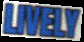
LIVELY